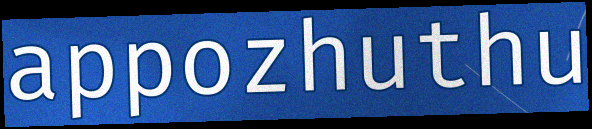
appozhuthu